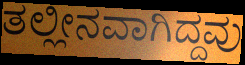
ತಲ್ಲೀನವಾಗಿದ್ದವು